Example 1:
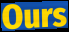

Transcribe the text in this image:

Ours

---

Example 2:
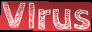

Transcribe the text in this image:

VIrus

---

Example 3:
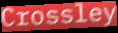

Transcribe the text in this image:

Crossley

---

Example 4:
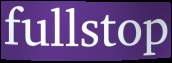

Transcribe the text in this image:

fullstop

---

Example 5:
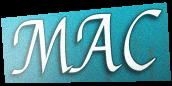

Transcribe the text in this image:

MAC